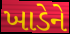
ખાડેને